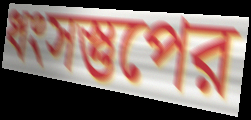
ধংসস্তুপের